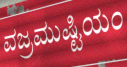
ವಜ್ರಮುಷ್ಟಿಯಂ